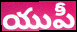
యుపీ